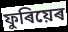
ফুৰিয়েৰ